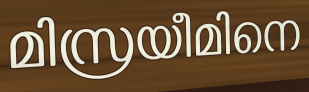
മിസ്രയീമിനെ